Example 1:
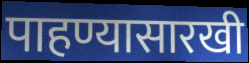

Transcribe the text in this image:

पाहण्यासारखी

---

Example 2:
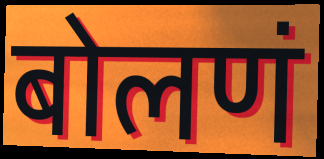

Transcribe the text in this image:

बोलणं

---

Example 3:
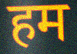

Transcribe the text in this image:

हम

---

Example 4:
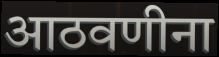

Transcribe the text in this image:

आठवणीना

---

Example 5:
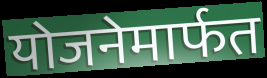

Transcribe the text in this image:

योजनेमार्फत